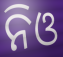
ନିଓ